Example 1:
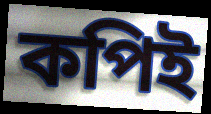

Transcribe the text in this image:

কপিই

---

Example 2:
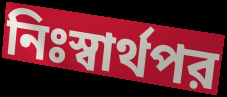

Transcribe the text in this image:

নিঃস্বার্থপর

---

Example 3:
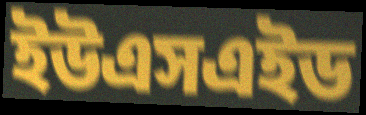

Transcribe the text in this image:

ইউএসএইড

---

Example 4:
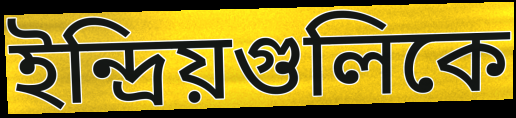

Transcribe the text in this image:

ইন্দ্রিয়গুলিকে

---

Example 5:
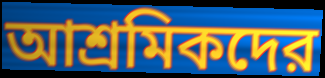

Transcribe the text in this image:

আশ্রমিকদের